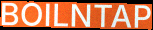
BOILNTAP